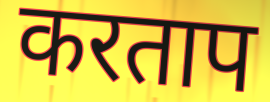
करताप